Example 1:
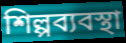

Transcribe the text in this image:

শিল্পব্যবস্থা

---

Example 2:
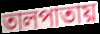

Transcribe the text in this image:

তালপাতায়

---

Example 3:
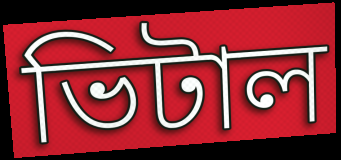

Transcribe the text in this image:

ভিটাল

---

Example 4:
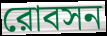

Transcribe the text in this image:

রোবসন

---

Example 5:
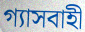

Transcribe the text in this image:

গ্যাসবাহী